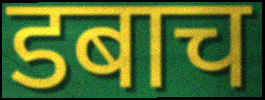
डबाच